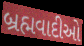
બ્રહ્મવાદીઓ